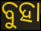
ବୁହା